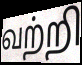
வற்றி